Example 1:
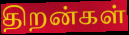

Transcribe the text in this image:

திறன்கள்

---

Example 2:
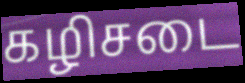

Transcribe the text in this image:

கழிசடை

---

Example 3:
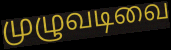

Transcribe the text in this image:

முழுவடிவை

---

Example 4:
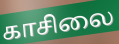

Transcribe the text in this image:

காசிலை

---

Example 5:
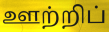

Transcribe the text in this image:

ஊற்றிப்